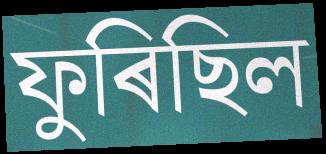
ফুৰিছিল